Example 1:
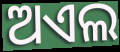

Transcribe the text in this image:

ଅଏଲ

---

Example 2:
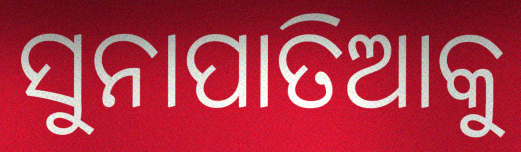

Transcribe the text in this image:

ସୁନାପାତିଆକୁ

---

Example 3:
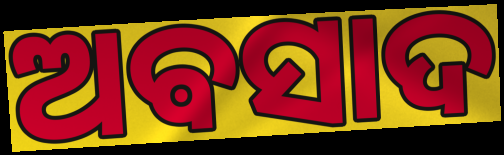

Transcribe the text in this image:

ଅଵସାଦ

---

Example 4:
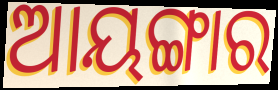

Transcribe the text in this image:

ଆୟଙ୍ଗାର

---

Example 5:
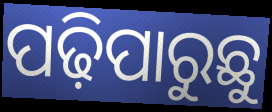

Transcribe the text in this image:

ପଢ଼ିପାରୁଛୁ